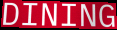
DINING